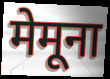
मेमूना